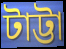
টাট্টা